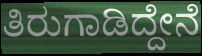
ತಿರುಗಾಡಿದ್ದೇನೆ